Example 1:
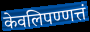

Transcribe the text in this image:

केवलिपण्णत्तं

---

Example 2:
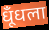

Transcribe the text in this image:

धूँधला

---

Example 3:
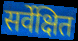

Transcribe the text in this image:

सर्वेक्षित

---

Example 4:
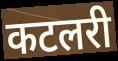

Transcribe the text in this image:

कटलरी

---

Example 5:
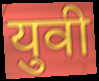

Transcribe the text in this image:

युवी